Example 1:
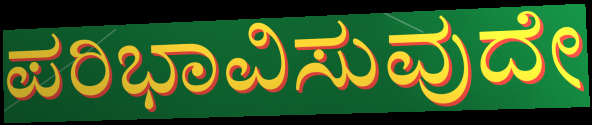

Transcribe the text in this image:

ಪರಿಭಾವಿಸುವುದೇ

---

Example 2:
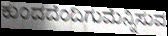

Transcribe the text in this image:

ಕುಂದದೆಂದಿಗುಮೆನ್ನಿಸುವ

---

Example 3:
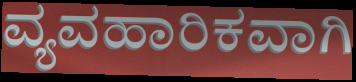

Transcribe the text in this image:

ವ್ಯವಹಾರಿಕವಾಗಿ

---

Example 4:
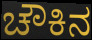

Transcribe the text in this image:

ಚೌಕಿನ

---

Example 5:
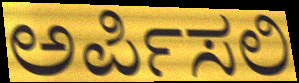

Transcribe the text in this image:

ಅರ್ಪಿಸಲಿ